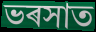
ভৰসাত